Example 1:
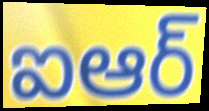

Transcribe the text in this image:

ఐఆర్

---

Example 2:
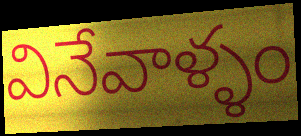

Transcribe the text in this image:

వినేవాళ్ళం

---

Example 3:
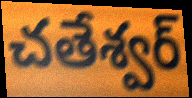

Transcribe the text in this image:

చతేశ్వర్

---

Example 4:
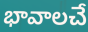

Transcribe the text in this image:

భావాలచే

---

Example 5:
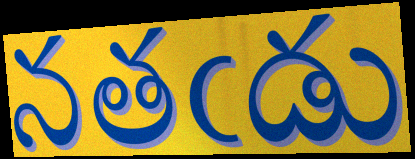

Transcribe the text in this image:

నతఁడు